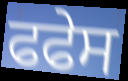
ਫਫੇਸ